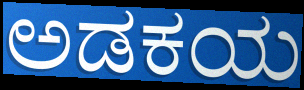
ಅಡಕಯ